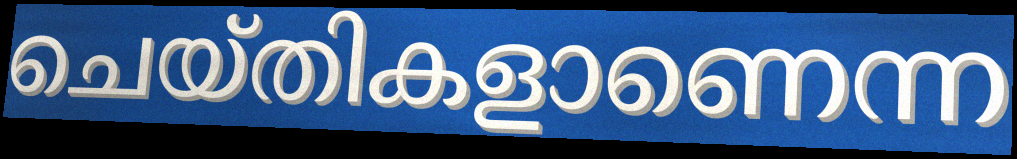
ചെയ്തികളാണെന്ന